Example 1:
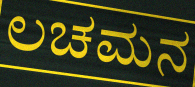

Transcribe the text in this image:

ಲಚಮನ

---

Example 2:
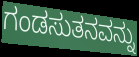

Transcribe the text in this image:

ಗಂಡಸುತನವನ್ನು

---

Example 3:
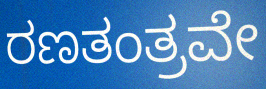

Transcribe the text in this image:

ರಣತಂತ್ರವೇ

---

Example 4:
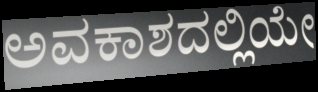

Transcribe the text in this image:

ಅವಕಾಶದಲ್ಲಿಯೇ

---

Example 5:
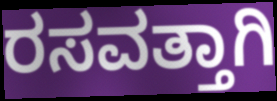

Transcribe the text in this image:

ರಸವತ್ತಾಗಿ